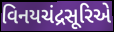
વિનયચંદ્રસૂરિએ